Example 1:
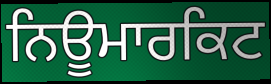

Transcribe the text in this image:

ਨਿਊਮਾਰਕਿਟ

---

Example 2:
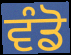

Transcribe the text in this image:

ਵੰਡੋ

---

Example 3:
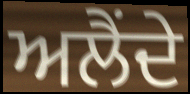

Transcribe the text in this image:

ਅਲੈਂਦੇ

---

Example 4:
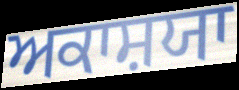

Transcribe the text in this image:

ਅਕਾਸ਼ਯਾ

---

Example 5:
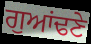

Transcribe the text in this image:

ਗੁਆਂਢਣੇ